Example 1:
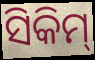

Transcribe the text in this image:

ସିକିମ୍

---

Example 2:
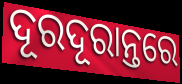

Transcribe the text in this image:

ଦୂରଦୂରାନ୍ତରେ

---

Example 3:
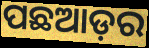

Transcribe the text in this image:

ପଛଆଡ଼ର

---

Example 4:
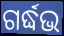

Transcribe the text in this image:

ଗର୍ଦ୍ଧଭ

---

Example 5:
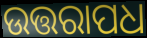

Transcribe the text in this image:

ଉତ୍ତରାପଧ